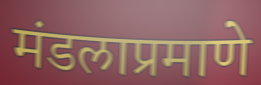
मंडलाप्रमाणे